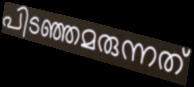
പിടഞ്ഞമരുന്നത്